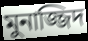
মুনাজ্জিদ